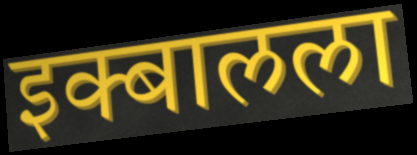
इक्बालला